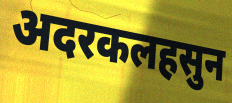
अदरकलहसुन